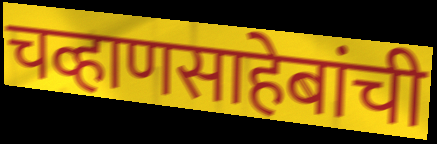
चव्हाणसाहेबांची